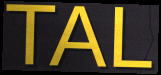
TAL